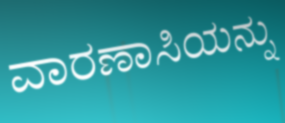
ವಾರಣಾಸಿಯನ್ನು